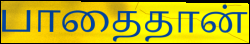
பாதைதான்